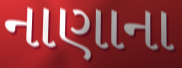
નાણાના